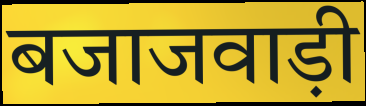
बजाजवाड़ी